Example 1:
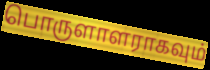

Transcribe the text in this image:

பொருளாளராகவும்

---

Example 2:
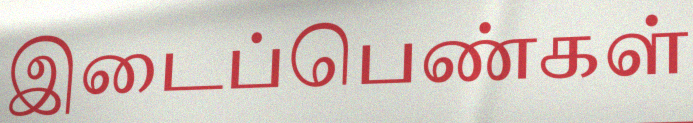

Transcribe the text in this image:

இடைப்பெண்கள்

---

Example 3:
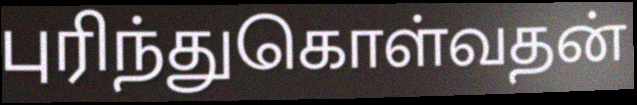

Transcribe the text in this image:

புரிந்துகொள்வதன்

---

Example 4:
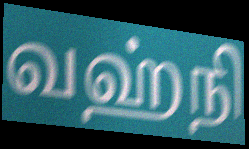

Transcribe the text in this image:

வஹ்நி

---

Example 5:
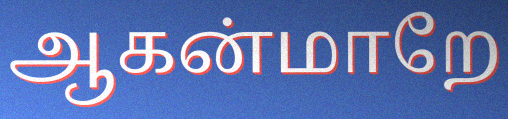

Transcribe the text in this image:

ஆகன்மாறே